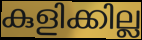
കുളിക്കില്ല